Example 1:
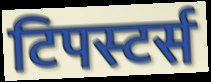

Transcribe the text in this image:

टिपस्टर्स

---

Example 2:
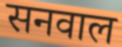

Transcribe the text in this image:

सनवाल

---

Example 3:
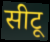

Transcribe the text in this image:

सीटू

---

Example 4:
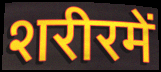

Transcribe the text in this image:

शरीरमें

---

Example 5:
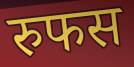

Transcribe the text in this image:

रुफस